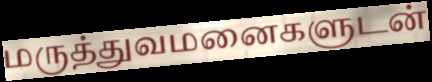
மருத்துவமனைகளுடன்